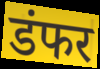
डंफर